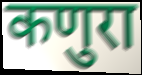
कणुरा